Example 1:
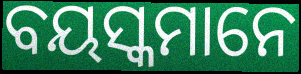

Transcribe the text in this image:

ବୟସ୍କମାନେ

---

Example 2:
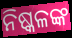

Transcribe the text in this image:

ନିଷ୍କଳଙ୍କ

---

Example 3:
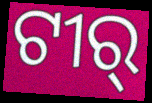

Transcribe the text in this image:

ଟୀର୍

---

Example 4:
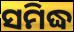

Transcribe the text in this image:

ସମିଦ୍ଧ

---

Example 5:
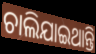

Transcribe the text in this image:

ଚାଲିଯାଇଥାନ୍ତି